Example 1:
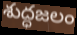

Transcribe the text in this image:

శుద్ధజలం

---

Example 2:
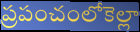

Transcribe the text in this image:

ప్రపంచంలోకెల్లా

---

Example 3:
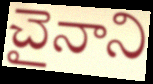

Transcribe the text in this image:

చైనాని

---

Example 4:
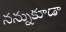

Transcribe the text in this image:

నన్నుకూడా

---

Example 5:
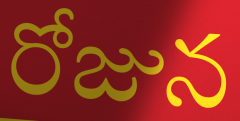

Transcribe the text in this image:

రోజున